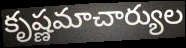
కృష్ణమాచార్యుల